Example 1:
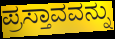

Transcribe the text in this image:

ಪ್ರಸ್ತಾವವನ್ನು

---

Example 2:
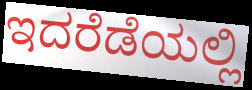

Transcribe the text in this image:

ಇದರೆಡೆಯಲ್ಲಿ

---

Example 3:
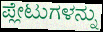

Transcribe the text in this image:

ಪ್ಲೇಟುಗಳನ್ನು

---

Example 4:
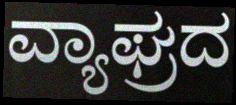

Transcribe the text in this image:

ವ್ಯಾಘ್ರದ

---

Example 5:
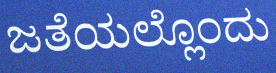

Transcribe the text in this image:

ಜತೆಯಲ್ಲೊಂದು